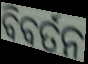
ବିବର୍ତନ